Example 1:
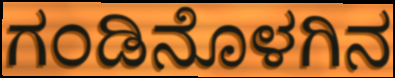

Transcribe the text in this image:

ಗಂಡಿನೊಳಗಿನ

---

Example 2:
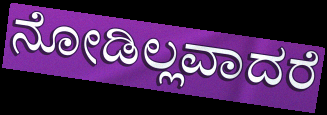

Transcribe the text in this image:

ನೋಡಿಲ್ಲವಾದರೆ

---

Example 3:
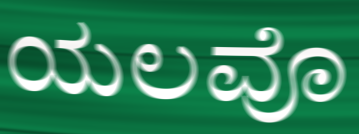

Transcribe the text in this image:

ಯಲವೊ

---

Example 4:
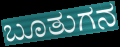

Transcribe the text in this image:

ಬೂತುಗನ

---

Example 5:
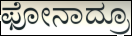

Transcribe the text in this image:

ಫೋನಾದ್ರೂ